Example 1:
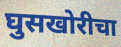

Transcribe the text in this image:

घुसखोरीचा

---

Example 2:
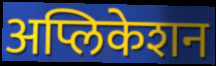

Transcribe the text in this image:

अप्लिकेशन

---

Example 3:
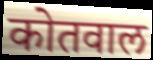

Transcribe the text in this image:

कोतवाल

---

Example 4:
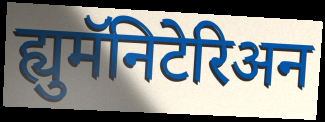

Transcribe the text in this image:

ह्युमॅनिटेरिअन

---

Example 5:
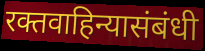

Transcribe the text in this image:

रक्तवाहिन्यासंबंधी